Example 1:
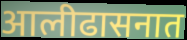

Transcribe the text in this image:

आलीढासनात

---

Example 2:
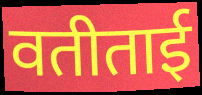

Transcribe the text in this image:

वतीताई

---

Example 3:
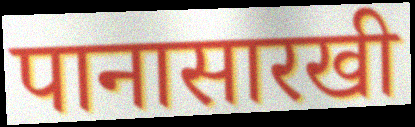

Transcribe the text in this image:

पानासारखी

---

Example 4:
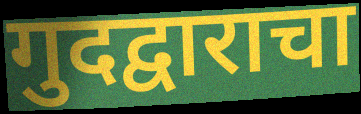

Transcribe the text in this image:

गुदद्वाराचा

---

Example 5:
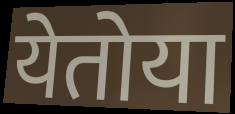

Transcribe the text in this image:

येतोया